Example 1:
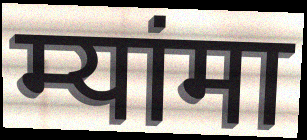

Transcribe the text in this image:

म्यांमा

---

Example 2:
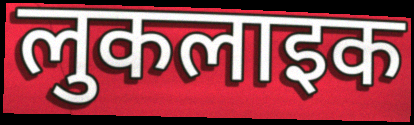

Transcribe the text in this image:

लुकलाइक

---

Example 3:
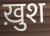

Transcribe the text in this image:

ख़ुश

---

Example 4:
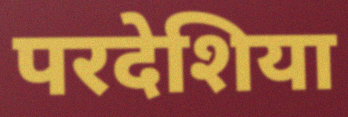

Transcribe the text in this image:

परदेशिया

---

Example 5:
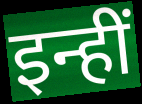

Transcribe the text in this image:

इन्‍हीं